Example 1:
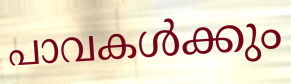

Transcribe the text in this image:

പാവകൾക്കും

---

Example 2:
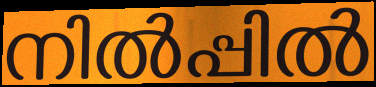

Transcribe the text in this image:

നിൽപ്പിൽ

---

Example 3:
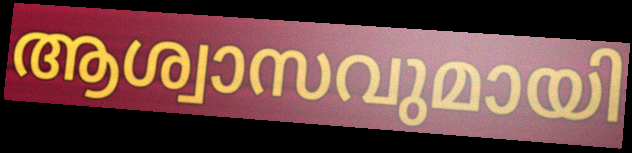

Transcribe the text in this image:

ആശ്വാസവുമായി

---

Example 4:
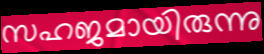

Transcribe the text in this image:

സഹജമായിരുന്നു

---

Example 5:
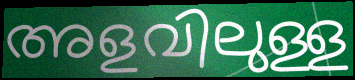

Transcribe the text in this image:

അളവിലുള്ള